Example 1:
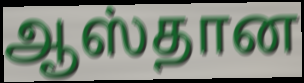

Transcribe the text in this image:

ஆஸ்தான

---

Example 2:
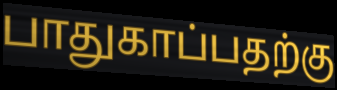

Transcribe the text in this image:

பாதுகாப்பதற்கு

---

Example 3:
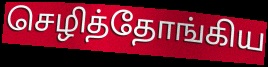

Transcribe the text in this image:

செழித்தோங்கிய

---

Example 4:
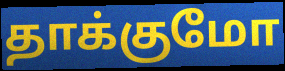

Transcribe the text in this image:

தாக்குமோ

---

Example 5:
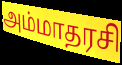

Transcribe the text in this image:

அம்மாதரசி